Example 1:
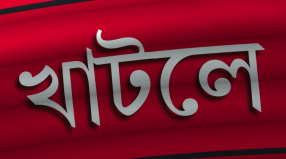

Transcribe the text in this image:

খাটলে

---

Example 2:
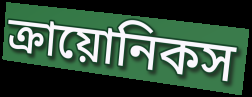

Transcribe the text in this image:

ক্রায়োনিকস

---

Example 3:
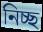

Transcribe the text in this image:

নিচ্ছ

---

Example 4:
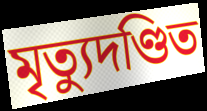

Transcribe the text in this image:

মৃত্যুদণ্ডিত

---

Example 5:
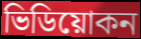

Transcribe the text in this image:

ভিডিয়োকন